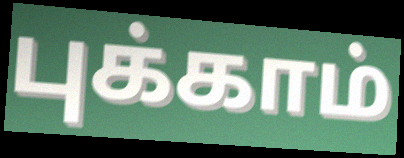
புக்காம்